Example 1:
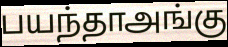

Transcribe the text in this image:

பயந்தாஅங்கு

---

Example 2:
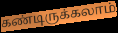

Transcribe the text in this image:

கண்டிருக்கலாம்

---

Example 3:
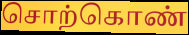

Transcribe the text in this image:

சொற்கொண்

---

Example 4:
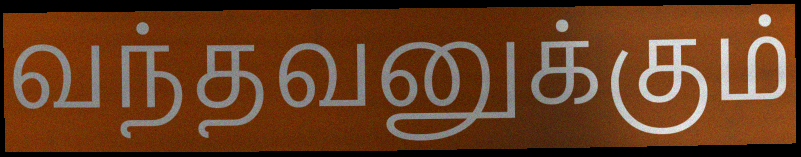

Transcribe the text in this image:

வந்தவனுக்கும்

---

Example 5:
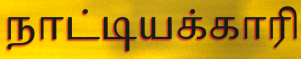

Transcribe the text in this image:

நாட்டியக்காரி